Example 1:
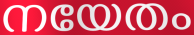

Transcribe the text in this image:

നയേതം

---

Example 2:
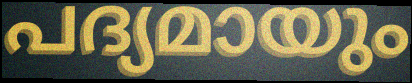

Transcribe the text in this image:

പദ്യമായും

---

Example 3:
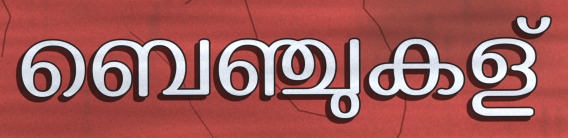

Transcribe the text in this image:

ബെഞ്ചുകള്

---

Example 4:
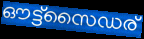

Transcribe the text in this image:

ഔട്ട്സൈഡര്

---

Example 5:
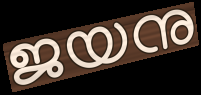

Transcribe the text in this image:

ജയനു